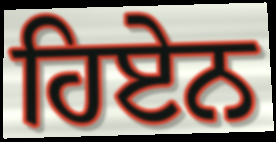
ਹਿਏਨ